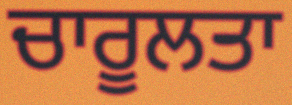
ਚਾਰੂਲਤਾ